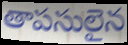
తాపసులైన